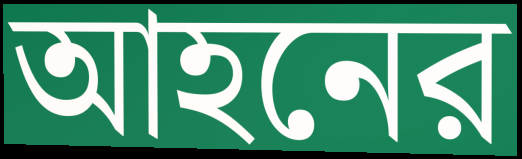
আহনের